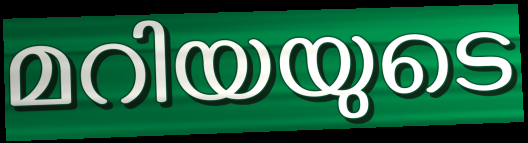
മറിയയുടെ